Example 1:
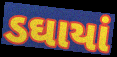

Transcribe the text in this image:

ડઘાયાં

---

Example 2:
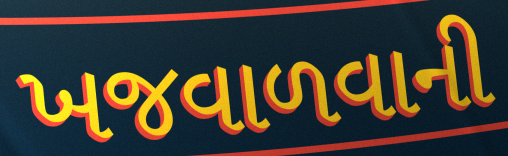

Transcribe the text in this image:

ખજવાળવાની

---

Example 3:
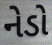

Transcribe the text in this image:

નેડો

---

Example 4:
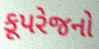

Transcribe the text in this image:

કૂપરેજનો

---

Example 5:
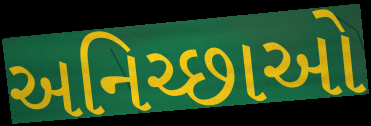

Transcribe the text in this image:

અનિચ્છાઓ